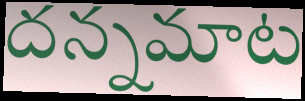
దన్నమాట